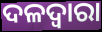
ଦଳଦ୍ୱାରା